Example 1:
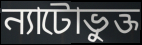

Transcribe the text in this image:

ন্যাটোভুক্ত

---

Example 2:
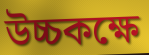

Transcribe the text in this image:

উচ্চকক্ষে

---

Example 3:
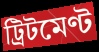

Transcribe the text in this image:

ট্রিটমেণ্ট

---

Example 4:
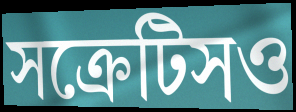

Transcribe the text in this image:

সক্রেটিসও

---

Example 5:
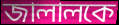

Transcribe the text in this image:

জালালকে